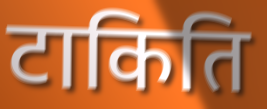
टाकिति